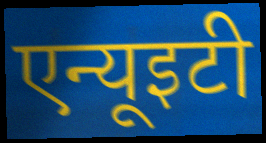
एन्यूइटी